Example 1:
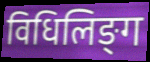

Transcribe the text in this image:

विधिलिङ्ग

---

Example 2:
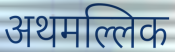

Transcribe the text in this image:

अथमल्लिक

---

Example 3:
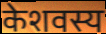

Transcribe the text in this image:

केशवस्य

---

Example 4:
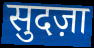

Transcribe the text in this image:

सुदज़ा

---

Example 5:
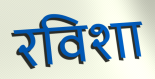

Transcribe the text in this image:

रविशा